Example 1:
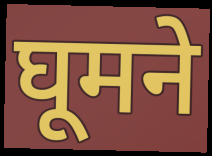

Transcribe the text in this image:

घूमने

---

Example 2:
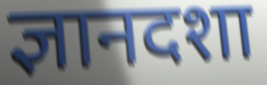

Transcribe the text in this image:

ज्ञानदशा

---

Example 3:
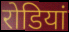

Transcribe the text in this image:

रोडियां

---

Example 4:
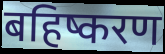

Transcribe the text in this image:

बहिष्करण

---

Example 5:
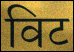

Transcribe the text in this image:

विट